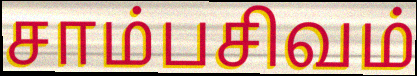
சாம்பசிவம்